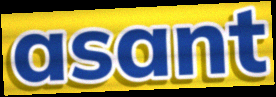
asant